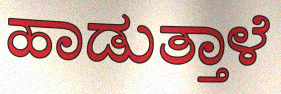
ಹಾಡುತ್ತಾಳೆ